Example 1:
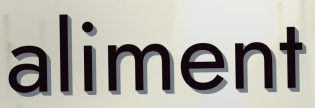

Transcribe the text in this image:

aliment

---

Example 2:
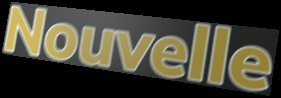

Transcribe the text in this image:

Nouvelle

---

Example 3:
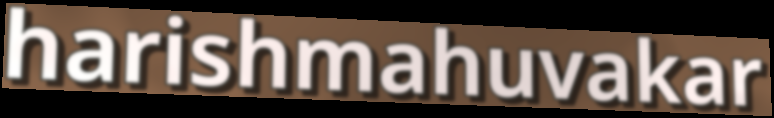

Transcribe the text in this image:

harishmahuvakar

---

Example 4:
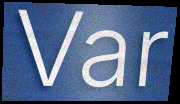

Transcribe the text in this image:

Var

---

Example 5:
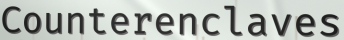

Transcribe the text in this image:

Counterenclaves